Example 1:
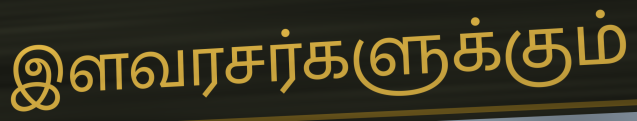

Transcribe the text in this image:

இளவரசர்களுக்கும்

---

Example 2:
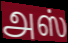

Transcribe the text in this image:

அஸ்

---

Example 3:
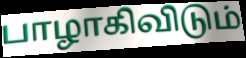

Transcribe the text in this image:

பாழாகிவிடும்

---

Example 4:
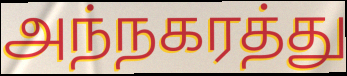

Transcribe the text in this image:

அந்நகரத்து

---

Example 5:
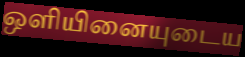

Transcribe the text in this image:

ஒளியினையுடைய